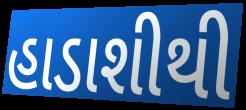
હાડાશીથી